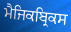
ਮੈਜਿਕਬ੍ਰਿਕਸ